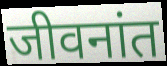
जीवनांत